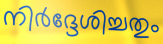
നിർദ്ദേശിച്ചതും